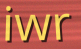
iwr